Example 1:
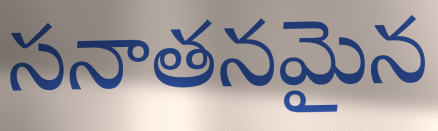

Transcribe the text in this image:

సనాతనమైన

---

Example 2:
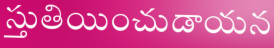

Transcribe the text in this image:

స్తుతియించుడాయన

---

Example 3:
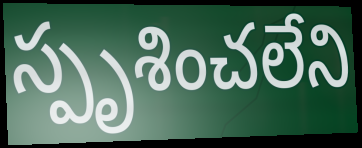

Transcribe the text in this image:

స్పృశించలేని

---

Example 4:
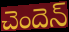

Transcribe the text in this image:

చెందెన్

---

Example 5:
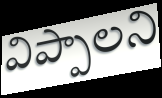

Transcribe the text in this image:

విప్పాలని